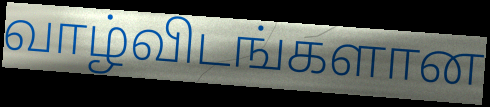
வாழ்விடங்களான